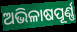
ଅଭିଳାଷପୂର୍ଣ୍ଣ